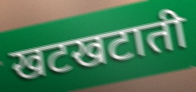
खटखटाती